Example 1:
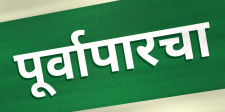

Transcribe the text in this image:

पूर्वापारचा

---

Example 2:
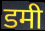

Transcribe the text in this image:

डमी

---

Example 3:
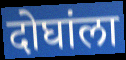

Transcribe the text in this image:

दोघांला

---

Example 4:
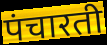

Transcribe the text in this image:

पंचारती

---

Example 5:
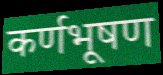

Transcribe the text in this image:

कर्णभूषण